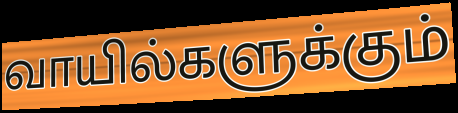
வாயில்களுக்கும்